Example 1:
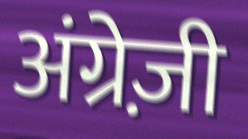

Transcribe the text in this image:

अंग्रेज़ी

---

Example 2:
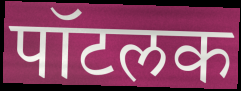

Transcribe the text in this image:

पॉटलक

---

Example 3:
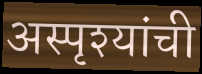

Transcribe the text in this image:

अस्पृश्यांची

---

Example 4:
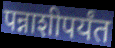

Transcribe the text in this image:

पन्नाशीपर्यंत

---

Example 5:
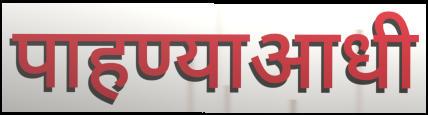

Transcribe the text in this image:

पाहण्याआधी